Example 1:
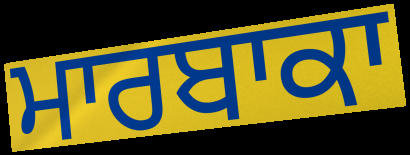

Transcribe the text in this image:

ਮਾਰਬਾਕਾ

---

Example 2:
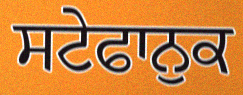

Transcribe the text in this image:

ਸਟੇਫਾਨੁਕ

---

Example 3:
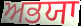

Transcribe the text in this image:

ਅਭਯਾ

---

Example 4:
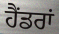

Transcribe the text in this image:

ਹੈਂਡਰਾਂ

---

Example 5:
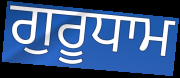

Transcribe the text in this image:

ਗੁਰੂਧਾਮ